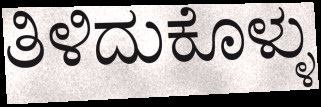
ತಿಳಿದುಕೊಳ್ಳು